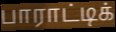
பாராட்டிக்